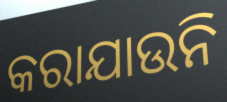
କରାଯାଉନି